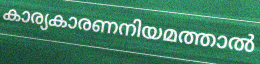
കാര്യകാരണനിയമത്താൽ